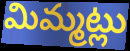
మిమ్మట్లు